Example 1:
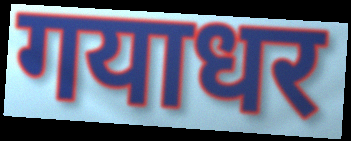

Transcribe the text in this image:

गयाधर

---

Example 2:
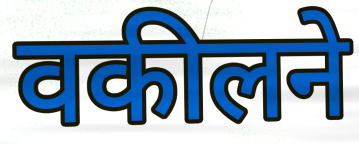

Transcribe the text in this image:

वकीलने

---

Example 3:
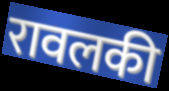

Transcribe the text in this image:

रावलकी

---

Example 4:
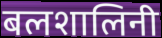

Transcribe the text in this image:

बलशालिनी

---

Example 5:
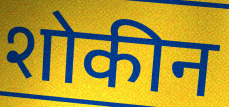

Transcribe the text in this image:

शोकीन